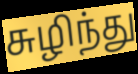
சுழிந்து